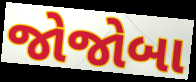
જોજોબા